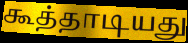
கூத்தாடியது